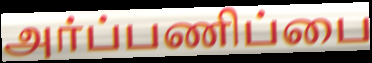
அர்ப்பணிப்பை